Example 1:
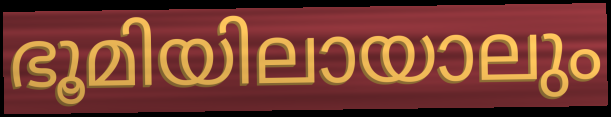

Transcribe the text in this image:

ഭൂമിയിലായാലും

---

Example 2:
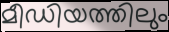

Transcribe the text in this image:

മീഡിയത്തിലും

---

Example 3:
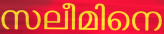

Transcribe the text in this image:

സലീമിനെ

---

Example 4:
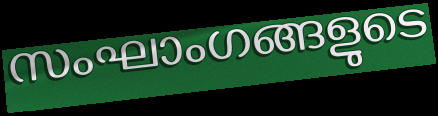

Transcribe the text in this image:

സംഘാംഗങ്ങളുടെ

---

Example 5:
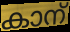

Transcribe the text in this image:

കാന്